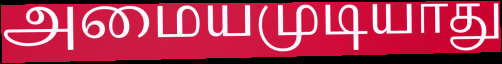
அமையமுடியாது